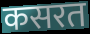
कसरत